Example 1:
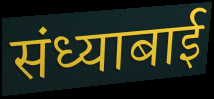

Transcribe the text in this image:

संध्याबाई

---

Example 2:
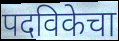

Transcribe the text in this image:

पदविकेचा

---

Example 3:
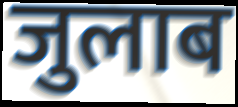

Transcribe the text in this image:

जुलाब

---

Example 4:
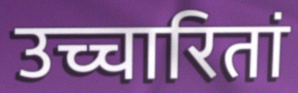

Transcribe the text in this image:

उच्चारितां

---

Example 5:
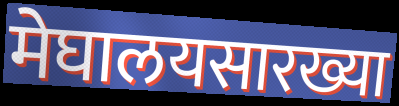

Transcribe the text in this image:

मेघालयसारख्या